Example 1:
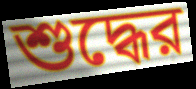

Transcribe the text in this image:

শুদ্ধের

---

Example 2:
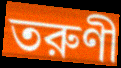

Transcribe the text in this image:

তরুণী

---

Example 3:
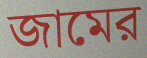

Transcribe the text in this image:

জামের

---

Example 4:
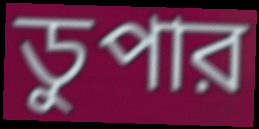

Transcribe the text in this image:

ডুপার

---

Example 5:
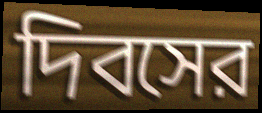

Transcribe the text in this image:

দিবসের